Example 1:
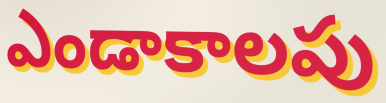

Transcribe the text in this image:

ఎండాకాలపు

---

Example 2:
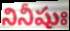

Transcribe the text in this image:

నినీషుః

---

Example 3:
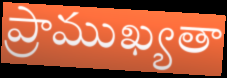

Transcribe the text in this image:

ప్రాముఖ్యతా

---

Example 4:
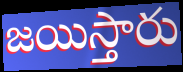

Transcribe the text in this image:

జయిస్తారు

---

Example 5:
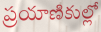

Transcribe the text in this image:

ప్రయాణికుల్లో